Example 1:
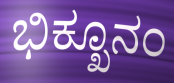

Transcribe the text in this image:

ಭಿಕ್ಖೂನಂ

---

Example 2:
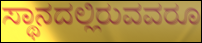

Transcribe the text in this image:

ಸ್ಥಾನದಲ್ಲಿರುವವರೂ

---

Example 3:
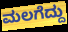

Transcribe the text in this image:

ಮಲಗೆದ್ದು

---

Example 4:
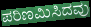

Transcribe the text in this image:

ಪರಿಣಮಿಸಿದವು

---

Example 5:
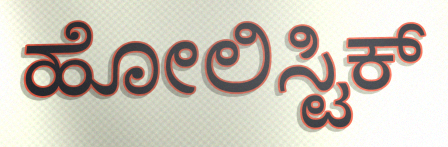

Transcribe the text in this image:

ಹೋಲಿಸ್ಟಿಕ್